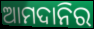
ଆମଦାନିର